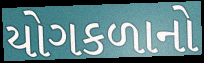
યોગકળાનો